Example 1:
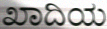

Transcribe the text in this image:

ಖಾದಿಯ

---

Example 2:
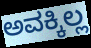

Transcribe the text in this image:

ಅವಕ್ಕಿಲ್ಲ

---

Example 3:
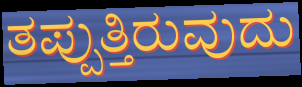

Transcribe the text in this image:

ತಪ್ಪುತ್ತಿರುವುದು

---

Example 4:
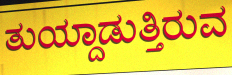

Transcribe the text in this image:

ತುಯ್ದಾಡುತ್ತಿರುವ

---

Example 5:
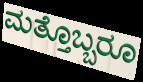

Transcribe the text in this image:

ಮತ್ತೊಬ್ಬರೂ